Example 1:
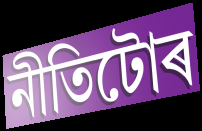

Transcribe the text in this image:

নীতিটোৰ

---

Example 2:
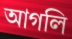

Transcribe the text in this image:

আগলি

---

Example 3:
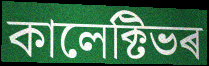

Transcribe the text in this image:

কালেক্টিভৰ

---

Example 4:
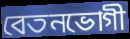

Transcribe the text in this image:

বেতনভোগী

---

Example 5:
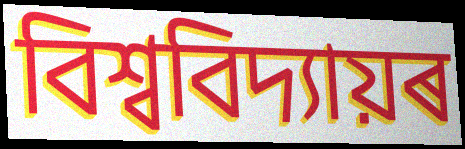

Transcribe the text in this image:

বিশ্ববিদ্যায়ৰ